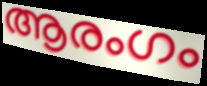
ആരംഗം